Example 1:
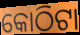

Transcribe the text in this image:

କୋଠିଟା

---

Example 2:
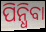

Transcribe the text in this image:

ପିନ୍ଧିବା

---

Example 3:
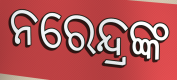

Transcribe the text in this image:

ନରେନ୍ଦ୍ରଙ୍କ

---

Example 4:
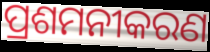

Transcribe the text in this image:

ପ୍ରଶମନୀକରଣ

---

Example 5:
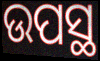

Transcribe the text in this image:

ଉପସ୍ଥ